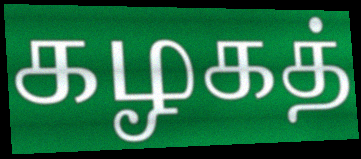
கழகத்